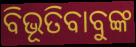
ବିଭୂତିବାବୁଙ୍କ